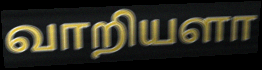
வாறியளா